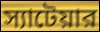
স্যাটেয়ার